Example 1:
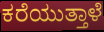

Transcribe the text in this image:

ಕರೆಯುತ್ತಾಳೆ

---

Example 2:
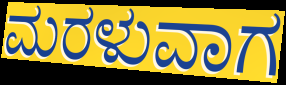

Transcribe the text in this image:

ಮರಳುವಾಗ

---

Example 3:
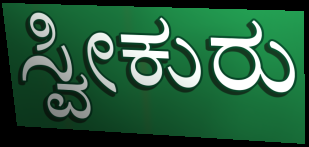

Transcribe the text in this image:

ಸ್ವೀಕುರು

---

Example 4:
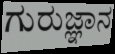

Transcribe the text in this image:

ಗುರುಜ್ಞಾನ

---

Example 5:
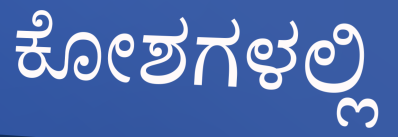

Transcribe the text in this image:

ಕೋಶಗಳಲ್ಲಿ